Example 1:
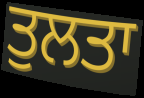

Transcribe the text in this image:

ਤੁਲਤਾ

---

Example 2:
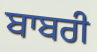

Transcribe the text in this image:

ਬਾਬਰੀ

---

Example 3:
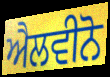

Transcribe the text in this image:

ਐਲਵੀਨੋ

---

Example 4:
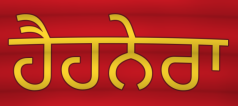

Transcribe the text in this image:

ਹੈਹਨੇਰਾ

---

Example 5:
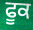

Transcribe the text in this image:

ਫੂਕ